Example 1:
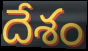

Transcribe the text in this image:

దేశం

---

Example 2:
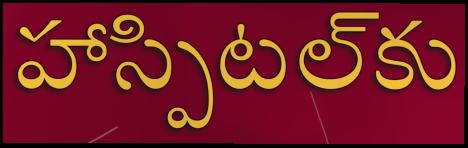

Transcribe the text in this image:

హాస్పిటల్‌కు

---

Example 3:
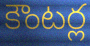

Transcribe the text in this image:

కౌంటర్ల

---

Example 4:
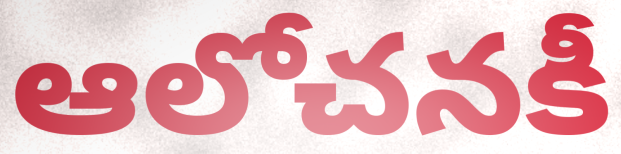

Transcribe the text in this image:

ఆలోచనకీ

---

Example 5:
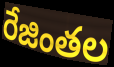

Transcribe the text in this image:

రేజింతల